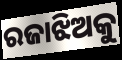
ରଜାଝିଅକୁ